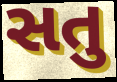
સતુ